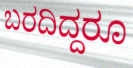
ಬರದಿದ್ದರೂ